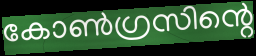
കോൺഗ്രസിന്റെ